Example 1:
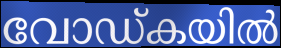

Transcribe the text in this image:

വോഡ്കയിൽ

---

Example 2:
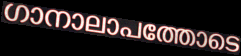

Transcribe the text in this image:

ഗാനാലാപത്തോടെ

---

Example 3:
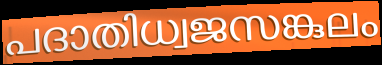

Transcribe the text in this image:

പദാതിധ്വജസങ്കുലം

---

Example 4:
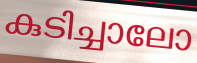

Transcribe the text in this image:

കുടിച്ചാലോ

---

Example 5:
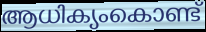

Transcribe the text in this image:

ആധിക്യംകൊണ്ട്